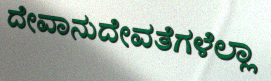
ದೇವಾನುದೇವತೆಗಳೆಲ್ಲಾ